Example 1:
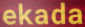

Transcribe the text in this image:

ekada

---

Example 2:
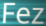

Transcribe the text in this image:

Fez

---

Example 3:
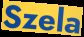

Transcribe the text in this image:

Szela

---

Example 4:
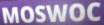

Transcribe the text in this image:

MOSWOC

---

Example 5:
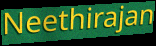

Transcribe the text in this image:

Neethirajan